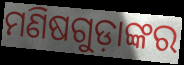
ମଣିଷଗୁଡ଼ାଙ୍କର